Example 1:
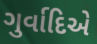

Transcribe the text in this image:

ગુર્વાદિએ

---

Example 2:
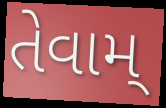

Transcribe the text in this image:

તેવામ્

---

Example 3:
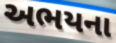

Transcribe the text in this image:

અભયના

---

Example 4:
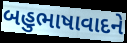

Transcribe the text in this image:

બહુભાષાવાદને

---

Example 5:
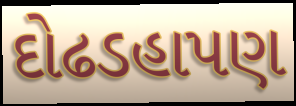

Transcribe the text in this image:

દોઢડહાપણ